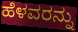
ಹೆಳವರನ್ನು